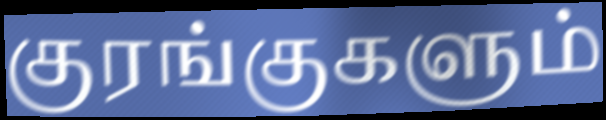
குரங்குகளும்